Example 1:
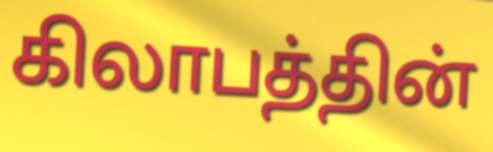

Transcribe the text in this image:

கிலாபத்தின்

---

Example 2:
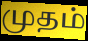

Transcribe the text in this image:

முதம்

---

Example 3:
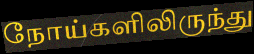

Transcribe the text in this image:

நோய்களிலிருந்து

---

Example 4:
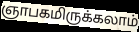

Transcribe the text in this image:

ஞாபகமிருக்கலாம்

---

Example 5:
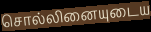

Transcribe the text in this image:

சொல்லினையுடைய